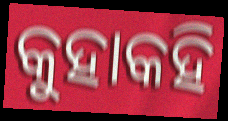
କୁହାକହି